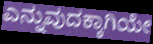
ಎನ್ನುವುದಕ್ಕಾಗಿಯೇ